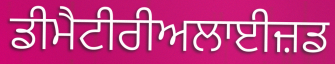
ਡੀਮੈਟੀਰੀਅਲਾਈਜ਼ਡ